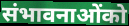
संभावनाओंको